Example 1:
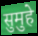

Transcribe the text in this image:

सुमुहे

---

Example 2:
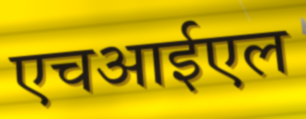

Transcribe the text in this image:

एचआईएल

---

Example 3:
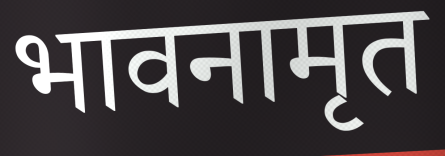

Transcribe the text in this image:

भावनामृत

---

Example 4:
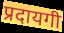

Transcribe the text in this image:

प्रदायगी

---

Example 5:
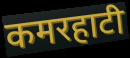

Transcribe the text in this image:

कमरहाटी